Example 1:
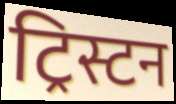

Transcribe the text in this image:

ट्रिस्टन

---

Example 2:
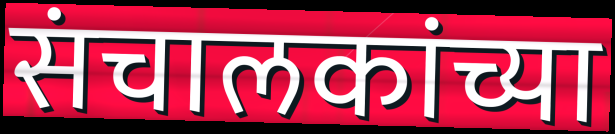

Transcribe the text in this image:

संचालकांच्या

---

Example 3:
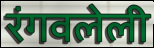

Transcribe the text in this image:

रंगवलेली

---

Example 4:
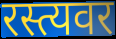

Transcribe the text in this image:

रस्त्यवर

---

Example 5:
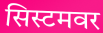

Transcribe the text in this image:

सिस्टमवर